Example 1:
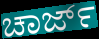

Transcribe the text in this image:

ಚಾರ್ಜ್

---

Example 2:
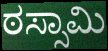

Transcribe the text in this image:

ಠಸ್ಸಾಮಿ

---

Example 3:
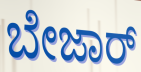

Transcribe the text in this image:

ಬೇಜಾರ್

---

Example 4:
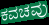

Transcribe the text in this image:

ಕವಚವು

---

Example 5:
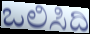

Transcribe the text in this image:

ಒಲಿಸಿದಿ